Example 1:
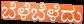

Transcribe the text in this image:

ಬೆಳೆಬೆಳೆದು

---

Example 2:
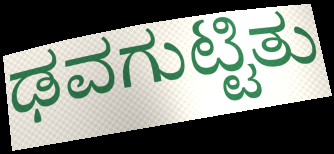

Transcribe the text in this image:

ಢವಗುಟ್ಟಿತು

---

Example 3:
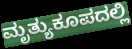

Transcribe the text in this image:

ಮೃತ್ಯುಕೂಪದಲ್ಲಿ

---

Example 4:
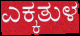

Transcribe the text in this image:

ಎಕ್ಕತುಳ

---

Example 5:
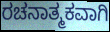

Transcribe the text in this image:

ರಚನಾತ್ಮಕವಾಗಿ